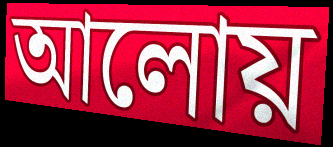
আলোয়